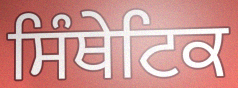
ਸਿੰਥੇਟਿਕ